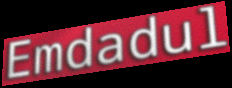
Emdadul